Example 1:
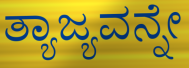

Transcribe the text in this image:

ತ್ಯಾಜ್ಯವನ್ನೇ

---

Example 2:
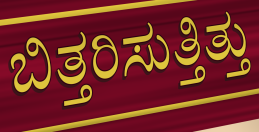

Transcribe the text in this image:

ಬಿತ್ತರಿಸುತ್ತಿತ್ತು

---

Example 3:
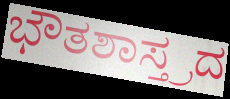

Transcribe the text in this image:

ಭೌತಶಾಸ್ತ್ರದ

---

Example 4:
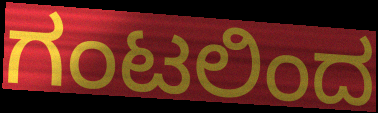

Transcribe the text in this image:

ಗಂಟಲಿಂದ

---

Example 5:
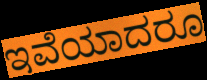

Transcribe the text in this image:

ಇವೆಯಾದರೂ